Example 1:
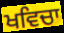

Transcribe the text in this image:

ਖਵਿਚਾ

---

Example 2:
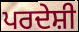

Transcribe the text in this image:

ਪਰਦੇਸ਼ੀ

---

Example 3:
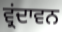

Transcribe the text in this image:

ਵ੍ਰਂਦਾਵਨ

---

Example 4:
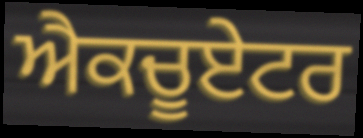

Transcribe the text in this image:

ਐਕਚੂਏਟਰ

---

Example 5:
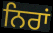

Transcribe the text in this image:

ਨਿਰਾਂ